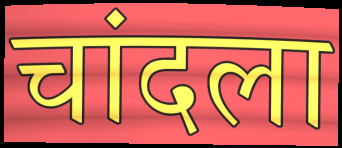
चांदला